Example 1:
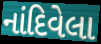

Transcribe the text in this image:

નાંદિવેલા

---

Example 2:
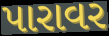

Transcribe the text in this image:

પારાવર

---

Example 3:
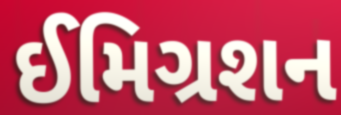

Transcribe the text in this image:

ઈમિગ્રશન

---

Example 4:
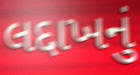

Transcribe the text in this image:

લદ્દાખનું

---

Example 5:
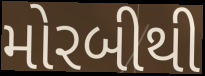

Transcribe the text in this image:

મોરબીથી